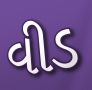
વીડ